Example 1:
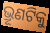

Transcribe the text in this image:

ଭ୍ରୂଣଟିକୁ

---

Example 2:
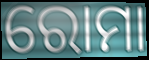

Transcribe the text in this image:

ରୋମା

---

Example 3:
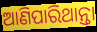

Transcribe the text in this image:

ଆଣିପାରିଥାନ୍ତା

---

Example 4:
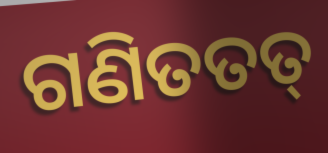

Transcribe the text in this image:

ଗଣିତତତ୍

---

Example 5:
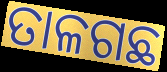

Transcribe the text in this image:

ତାଳଗଛ